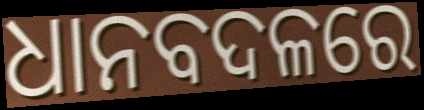
ଧାନବଦଳରେ